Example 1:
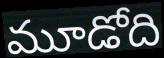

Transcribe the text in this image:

మూడోది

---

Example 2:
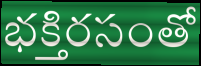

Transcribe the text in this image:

భక్తిరసంతో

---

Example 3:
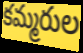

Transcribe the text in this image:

కమ్మరుల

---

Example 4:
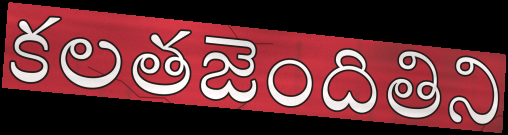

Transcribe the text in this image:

కలతజెందితిని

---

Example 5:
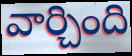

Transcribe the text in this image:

వార్చింది